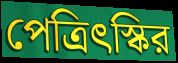
পেত্রিৎস্কির